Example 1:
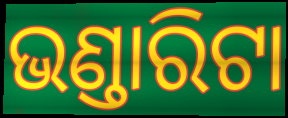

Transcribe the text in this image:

ଭଣ୍ଡାରିଟା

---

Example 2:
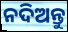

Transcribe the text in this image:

ନଦିଅନ୍ତୁ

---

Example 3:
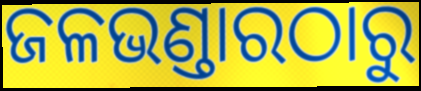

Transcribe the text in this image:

ଜଳଭଣ୍ଡାରଠାରୁ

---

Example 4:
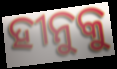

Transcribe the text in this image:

ହୀନୁକୁ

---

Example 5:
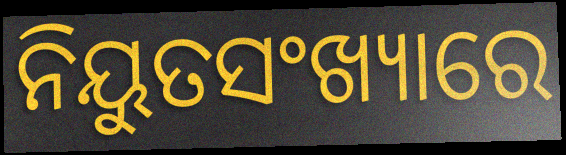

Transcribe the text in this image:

ନିୟୁତସଂଖ୍ୟାରେ